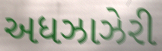
અધઝાઝેરી